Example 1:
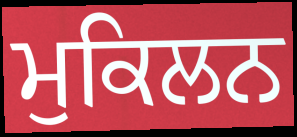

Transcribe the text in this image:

ਮੁਕਿਲਨ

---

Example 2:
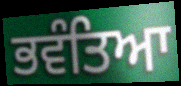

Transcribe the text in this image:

ਭਵੰਤਿਆ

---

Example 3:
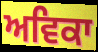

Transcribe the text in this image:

ਅਵਿਕਾ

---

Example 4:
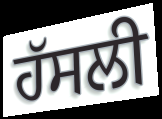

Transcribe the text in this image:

ਹੱਸਲੀ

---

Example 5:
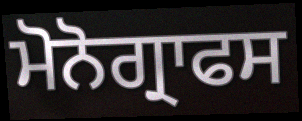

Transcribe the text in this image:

ਮੋਨੋਗ੍ਰਾਫਸ